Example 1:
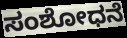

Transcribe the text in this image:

ಸಂಶೋಧನೆ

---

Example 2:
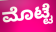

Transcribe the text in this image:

ಮೊಟ್ಟೆ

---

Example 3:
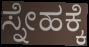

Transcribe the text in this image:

ಸ್ನೇಹಕ್ಕೆ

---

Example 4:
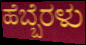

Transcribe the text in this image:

ಹೆಬ್ಬೆರಳು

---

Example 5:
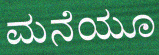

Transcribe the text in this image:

ಮನೆಯೂ